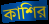
কাশির